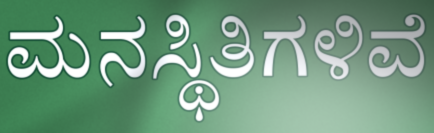
ಮನಸ್ಥಿತಿಗಳಿವೆ